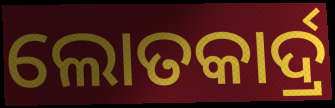
ଲୋତକାର୍ଦ୍ର